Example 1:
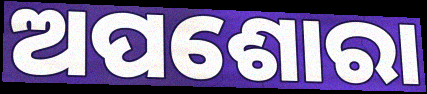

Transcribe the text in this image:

ଅପଶୋରା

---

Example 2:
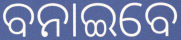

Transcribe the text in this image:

ବନାଇବେ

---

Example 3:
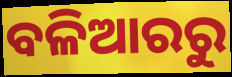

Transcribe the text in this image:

ବଳିଆରରୁ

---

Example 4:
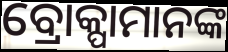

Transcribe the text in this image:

ବ୍ରୋକ୍ପାମାନଙ୍କ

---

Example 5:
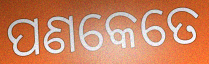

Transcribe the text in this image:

ପଣକେତେ